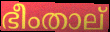
ഭീംതാല്